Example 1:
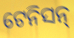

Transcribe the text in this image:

ଟେନିସନ୍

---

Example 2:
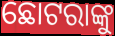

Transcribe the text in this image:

ଛୋଟରାଙ୍କୁ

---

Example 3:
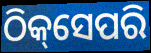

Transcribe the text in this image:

ଠିକ୍‌ସେପରି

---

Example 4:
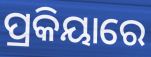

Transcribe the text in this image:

ପ୍ରକିୟାରେ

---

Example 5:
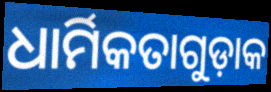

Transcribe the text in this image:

ଧାର୍ମିକତାଗୁଡ଼ାକ